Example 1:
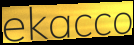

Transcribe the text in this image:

ekacco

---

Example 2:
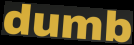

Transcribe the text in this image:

dumb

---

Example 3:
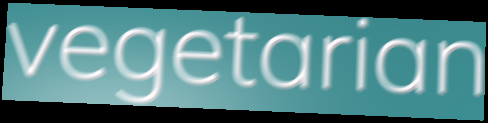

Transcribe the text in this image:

vegetarian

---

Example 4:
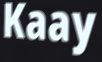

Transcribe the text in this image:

Kaay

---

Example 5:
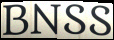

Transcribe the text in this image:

BNSS